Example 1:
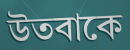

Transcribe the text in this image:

উতবাকে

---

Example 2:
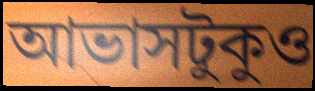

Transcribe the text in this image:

আভাসটুকুও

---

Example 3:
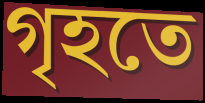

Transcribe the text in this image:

গৃহতে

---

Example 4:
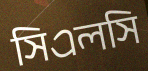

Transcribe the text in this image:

সিএলসি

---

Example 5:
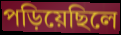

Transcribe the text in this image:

পড়িয়েছিলে